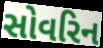
સોવરિન